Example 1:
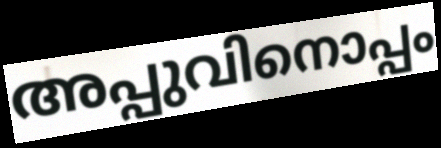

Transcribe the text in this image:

അപ്പുവിനൊപ്പം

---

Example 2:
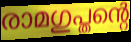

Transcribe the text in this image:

രാമഗുപ്തന്റെ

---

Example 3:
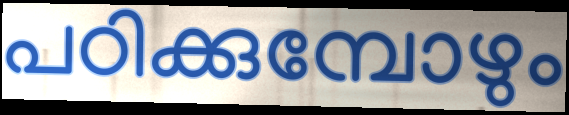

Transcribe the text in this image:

പഠിക്കുമ്പോഴും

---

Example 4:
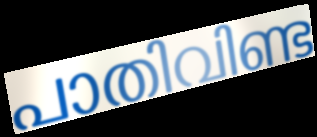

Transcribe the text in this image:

പാതിവിണ്ട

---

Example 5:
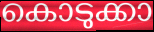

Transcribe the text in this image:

കൊടുക്കാ